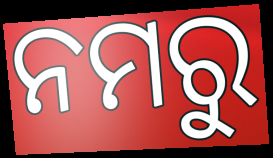
ନମରୁ